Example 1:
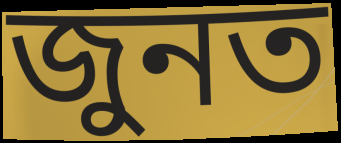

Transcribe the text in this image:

জুনত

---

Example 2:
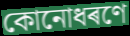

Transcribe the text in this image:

কোনোধৰণে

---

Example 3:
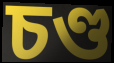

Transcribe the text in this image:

চণ্ড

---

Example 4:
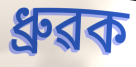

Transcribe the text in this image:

ধ্ৰুৱক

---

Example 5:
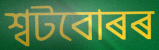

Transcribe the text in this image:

শ্বটবোৰৰ